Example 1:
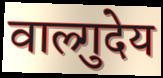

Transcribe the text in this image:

वाल्गुदेय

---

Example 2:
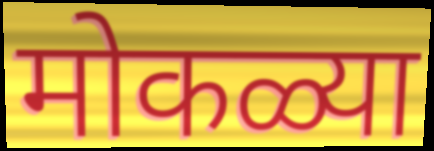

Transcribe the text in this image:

मोकळ्या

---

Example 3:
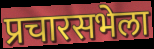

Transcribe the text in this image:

प्रचारसभेला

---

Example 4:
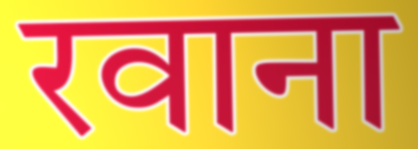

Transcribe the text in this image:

रवाना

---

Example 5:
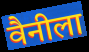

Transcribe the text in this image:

वैनीला